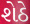
શેઠે